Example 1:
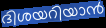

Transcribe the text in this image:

ദിശയറിയാൻ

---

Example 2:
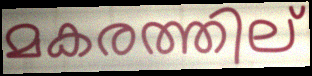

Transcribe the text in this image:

മകരത്തില്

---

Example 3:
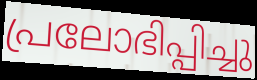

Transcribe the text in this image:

പ്രലോഭിപ്പിച്ചു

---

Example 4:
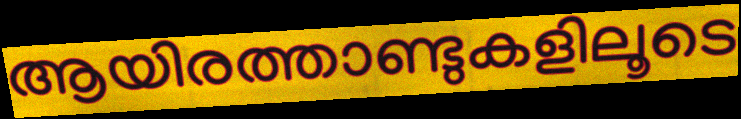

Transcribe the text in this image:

ആയിരത്താണ്ടുകളിലൂടെ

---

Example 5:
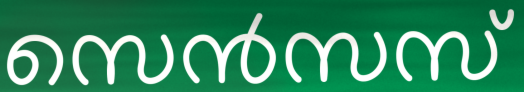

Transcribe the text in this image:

സെൻസസ്